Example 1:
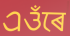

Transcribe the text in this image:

এওঁৰে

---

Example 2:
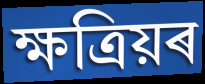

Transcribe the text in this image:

ক্ষত্ৰিয়ৰ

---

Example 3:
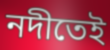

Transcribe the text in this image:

নদীতেই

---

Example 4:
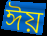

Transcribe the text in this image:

ঈয়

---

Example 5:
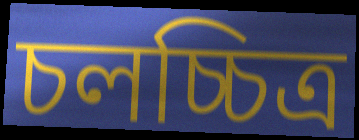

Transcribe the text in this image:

চলচ্চিত্ৰ